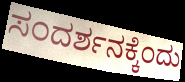
ಸಂದರ್ಶನಕ್ಕೆಂದು